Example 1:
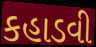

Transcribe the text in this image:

કહાડવી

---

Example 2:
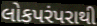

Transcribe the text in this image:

લોકપરંપરાથી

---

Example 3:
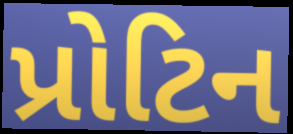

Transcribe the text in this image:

પ્રોટિન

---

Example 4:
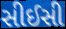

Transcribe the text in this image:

સીઈસી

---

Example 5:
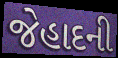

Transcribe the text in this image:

જેહાદની